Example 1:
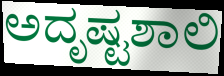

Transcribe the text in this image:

ಅದೃಷ್ಟಶಾಲಿ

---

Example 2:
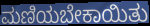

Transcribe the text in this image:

ಮಣಿಯಬೇಕಾಯಿತು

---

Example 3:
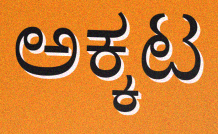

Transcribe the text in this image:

ಅಕ್ಕಟ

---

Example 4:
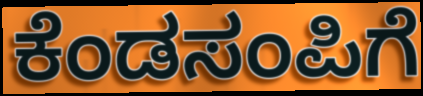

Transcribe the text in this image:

ಕೆಂಡಸಂಪಿಗೆ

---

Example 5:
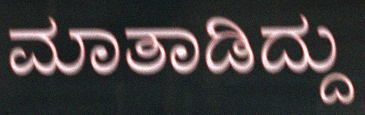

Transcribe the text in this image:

ಮಾತಾಡಿದ್ದು